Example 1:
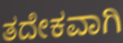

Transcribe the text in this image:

ತದೇಕವಾಗಿ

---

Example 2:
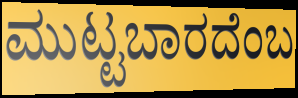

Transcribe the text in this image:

ಮುಟ್ಟಬಾರದೆಂಬ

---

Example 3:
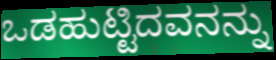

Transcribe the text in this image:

ಒಡಹುಟ್ಟಿದವನನ್ನು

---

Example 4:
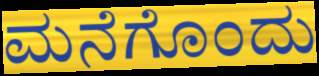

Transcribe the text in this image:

ಮನೆಗೊಂದು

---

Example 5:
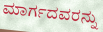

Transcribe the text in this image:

ಮಾರ್ಗದವರನ್ನು